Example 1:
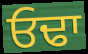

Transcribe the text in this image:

ਓਢਾ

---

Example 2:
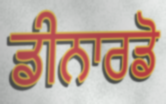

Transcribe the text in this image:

ਡੀਨਾਰਡੋ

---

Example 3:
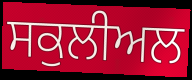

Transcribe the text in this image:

ਸਕੁਲੀਅਲ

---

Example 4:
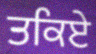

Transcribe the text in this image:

ਤਕਿਏ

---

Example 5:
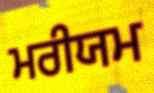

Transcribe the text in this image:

ਮਰੀਯਮ